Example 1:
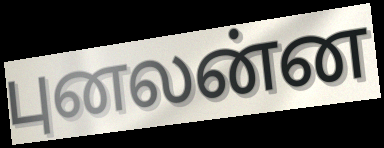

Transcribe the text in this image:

புனலன்ன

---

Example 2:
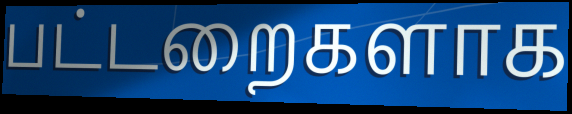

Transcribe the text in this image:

பட்டறைகளாக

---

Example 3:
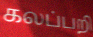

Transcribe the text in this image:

கலப்பறி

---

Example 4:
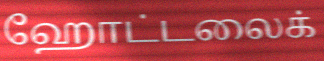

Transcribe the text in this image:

ஹோட்டலைக்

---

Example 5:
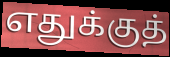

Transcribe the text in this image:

எதுக்குத்